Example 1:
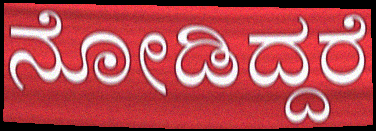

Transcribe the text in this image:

ನೋಡಿದ್ದರೆ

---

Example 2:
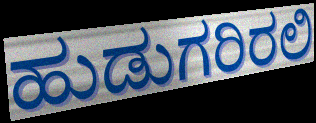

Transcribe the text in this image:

ಹುಡುಗರಿರಲಿ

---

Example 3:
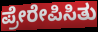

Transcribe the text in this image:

ಪ್ರೇರೇಪಿಸಿತು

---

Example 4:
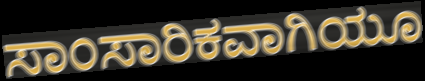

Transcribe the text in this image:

ಸಾಂಸಾರಿಕವಾಗಿಯೂ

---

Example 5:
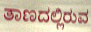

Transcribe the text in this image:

ತಾಣದಲ್ಲಿರುವ